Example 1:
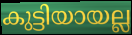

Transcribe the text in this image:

കുട്ടിയായല്ല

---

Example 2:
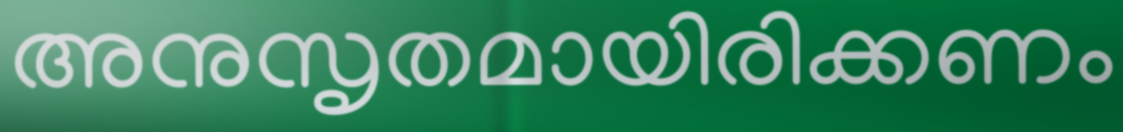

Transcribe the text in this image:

അനുസൃതമായിരിക്കണം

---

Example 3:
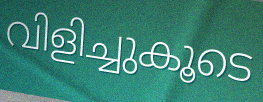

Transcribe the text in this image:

വിളിച്ചുകൂടെ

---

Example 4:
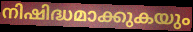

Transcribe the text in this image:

നിഷിദ്ധമാക്കുകയും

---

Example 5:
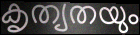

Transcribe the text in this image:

കൃത്യതയും